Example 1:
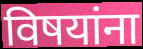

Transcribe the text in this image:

विषयांना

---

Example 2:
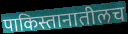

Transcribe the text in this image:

पाकिस्तानातीलच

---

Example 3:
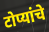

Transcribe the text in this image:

टोप्यांचे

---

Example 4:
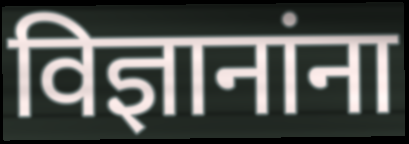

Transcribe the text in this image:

विज्ञानांना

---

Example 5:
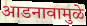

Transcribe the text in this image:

आडनावामुळे